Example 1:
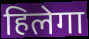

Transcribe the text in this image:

हिलेगा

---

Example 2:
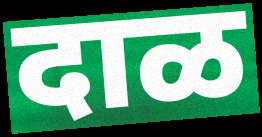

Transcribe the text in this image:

दाळ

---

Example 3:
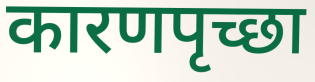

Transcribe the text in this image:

कारणपृच्छा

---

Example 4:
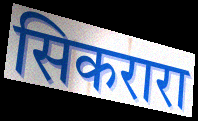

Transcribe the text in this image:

सिकरारा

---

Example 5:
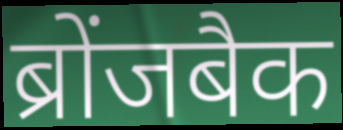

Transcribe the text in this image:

ब्रोंजबैक